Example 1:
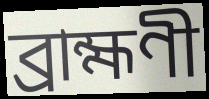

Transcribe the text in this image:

ব্ৰাহ্মণী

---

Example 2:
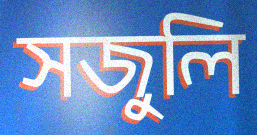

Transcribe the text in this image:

সজুলি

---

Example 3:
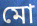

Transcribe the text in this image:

মো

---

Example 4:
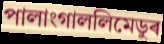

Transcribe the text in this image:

পালাংগাললিমেডুৰ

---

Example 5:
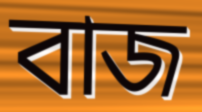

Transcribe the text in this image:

বাজ